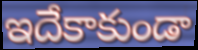
ఇదేకాకుండా